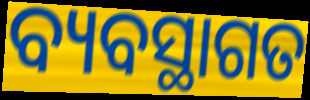
ବ୍ୟବସ୍ଥାଗତ